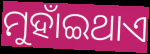
ମୁହାଁଇଥାଏ